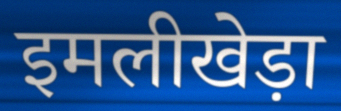
इमलीखेड़ा